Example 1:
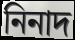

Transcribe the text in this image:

নিনাদ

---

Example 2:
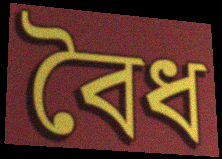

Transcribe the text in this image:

বৈধ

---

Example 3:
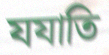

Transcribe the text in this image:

যযাতি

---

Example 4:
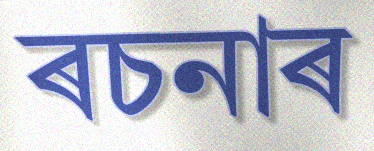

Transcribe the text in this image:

ৰচনাৰ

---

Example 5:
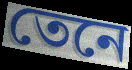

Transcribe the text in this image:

তেনে